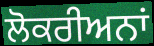
ਲੋਕਰੀਅਨਾਂ